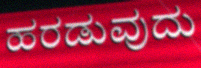
ಹರಡುವುದು